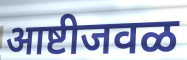
आष्टीजवळ